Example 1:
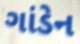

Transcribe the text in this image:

ગાંડેન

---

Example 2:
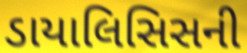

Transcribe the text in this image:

ડાયાલિસિસની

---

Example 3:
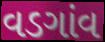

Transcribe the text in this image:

વડગાંવ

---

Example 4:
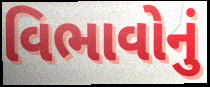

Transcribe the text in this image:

વિભાવોનું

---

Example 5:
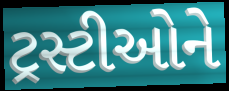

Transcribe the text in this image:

ટ્રસ્ટીઓને